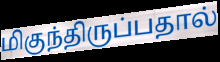
மிகுந்திருப்பதால்